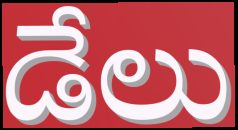
డేలు